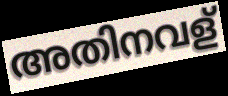
അതിനവള്